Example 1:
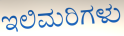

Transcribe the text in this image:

ಇಲಿಮರಿಗಳು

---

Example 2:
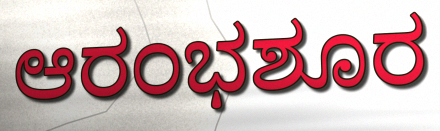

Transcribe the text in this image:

ಆರಂಭಶೂರ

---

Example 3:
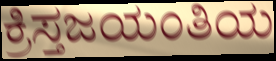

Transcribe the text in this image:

ಕ್ರಿಸ್ತಜಯಂತಿಯ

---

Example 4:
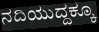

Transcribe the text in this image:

ನದಿಯುದ್ದಕ್ಕೂ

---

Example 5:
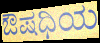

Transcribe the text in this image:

ಔಷಧಿಯ